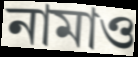
নামাও